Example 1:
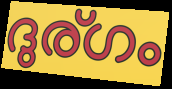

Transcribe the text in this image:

ദുര്ഗം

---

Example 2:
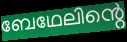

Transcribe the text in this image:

ബേഥേലിന്റെ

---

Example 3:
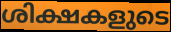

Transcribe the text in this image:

ശിക്ഷകളുടെ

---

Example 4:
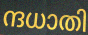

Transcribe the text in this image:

ന്ദധാതി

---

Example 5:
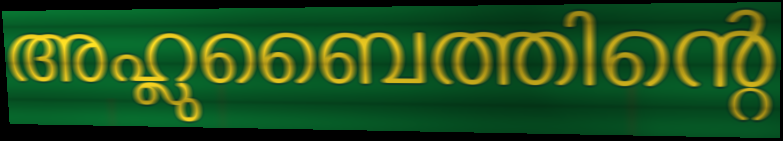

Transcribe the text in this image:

അഹ്ലുബൈത്തിന്റെ